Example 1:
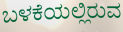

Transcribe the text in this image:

ಬಳಕೆಯಲ್ಲಿರುವ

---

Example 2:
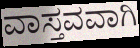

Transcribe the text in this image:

ವಾಸ್ತವವಾಗಿ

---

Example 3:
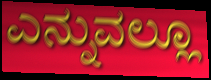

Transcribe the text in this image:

ಎನ್ನುವಲ್ಲೂ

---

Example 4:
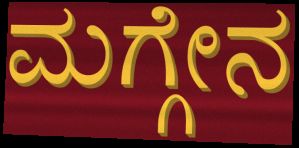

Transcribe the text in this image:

ಮಗ್ಗೇನ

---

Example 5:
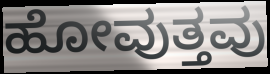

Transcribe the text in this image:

ಹೋವುತ್ತವು